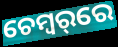
ଚେମ୍ବର୍‌ରେ